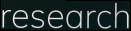
research